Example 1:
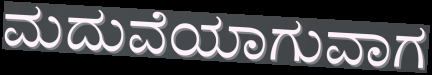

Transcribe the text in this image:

ಮದುವೆಯಾಗುವಾಗ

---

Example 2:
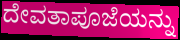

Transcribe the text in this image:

ದೇವತಾಪೂಜೆಯನ್ನು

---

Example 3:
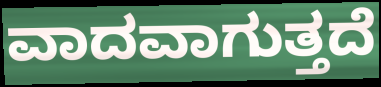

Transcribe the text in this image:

ವಾದವಾಗುತ್ತದೆ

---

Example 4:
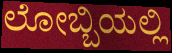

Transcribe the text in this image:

ಲೋಬ್ಬಿಯಲ್ಲಿ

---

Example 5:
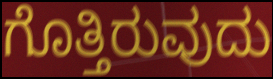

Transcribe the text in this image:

ಗೊತ್ತಿರುವುದು